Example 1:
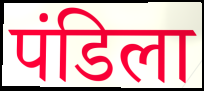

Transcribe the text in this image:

पंडिला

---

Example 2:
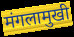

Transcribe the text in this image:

मंगलामुखी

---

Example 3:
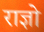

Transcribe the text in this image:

राज्ञो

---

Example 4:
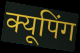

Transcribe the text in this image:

क्यूपिंग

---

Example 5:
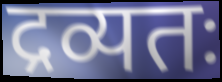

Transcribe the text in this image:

द्रव्यतः